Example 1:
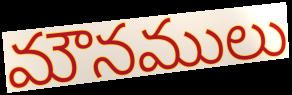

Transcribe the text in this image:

మౌనములు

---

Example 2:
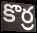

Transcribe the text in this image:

కొర్ర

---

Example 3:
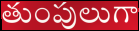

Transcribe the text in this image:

తుంపులుగా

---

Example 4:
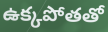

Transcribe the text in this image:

ఉక్కపోతతో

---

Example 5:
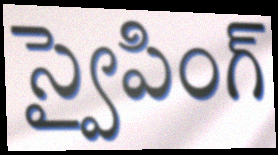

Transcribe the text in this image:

స్వైపింగ్